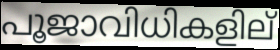
പൂജാവിധികളില്